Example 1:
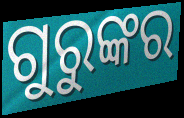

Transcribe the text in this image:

ଗୁରୁଙ୍କର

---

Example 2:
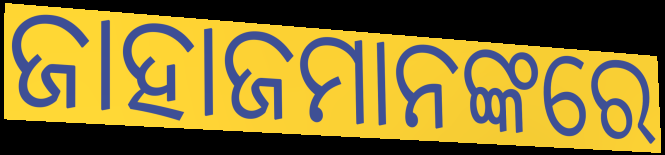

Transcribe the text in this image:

ଜାହାଜମାନଙ୍କରେ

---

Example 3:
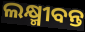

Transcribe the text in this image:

ଲକ୍ଷ୍ମୀବନ୍ତ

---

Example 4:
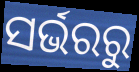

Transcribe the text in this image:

ସର୍ଭରରୁ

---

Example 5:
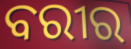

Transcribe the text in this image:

ବରୀର